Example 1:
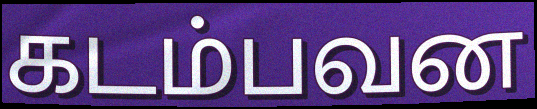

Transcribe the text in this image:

கடம்பவன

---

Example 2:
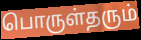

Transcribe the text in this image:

பொருள்தரும்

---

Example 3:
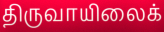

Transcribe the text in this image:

திருவாயிலைக்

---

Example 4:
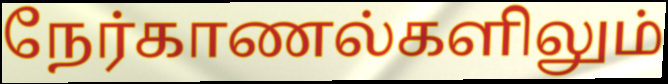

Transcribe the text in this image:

நேர்காணல்களிலும்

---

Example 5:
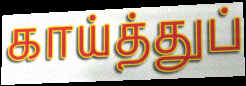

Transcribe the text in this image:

காய்த்துப்